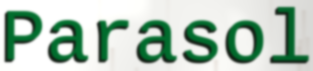
Parasol